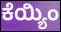
ಕೆಯ್ಯಿಂ